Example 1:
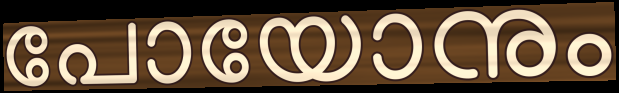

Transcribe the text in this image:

പോയോനും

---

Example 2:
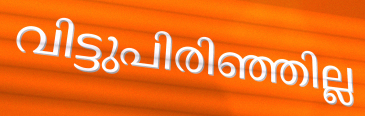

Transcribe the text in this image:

വിട്ടുപിരിഞ്ഞില്ല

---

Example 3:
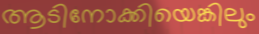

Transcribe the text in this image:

ആടിനോക്കിയെങ്കിലും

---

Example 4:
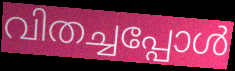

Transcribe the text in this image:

വിതച്ചപ്പോൾ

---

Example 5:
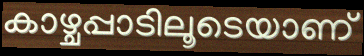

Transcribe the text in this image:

കാഴ്ചപ്പാടിലൂടെയാണ്